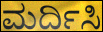
ಮರ್ದಿಸಿ